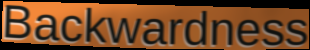
Backwardness